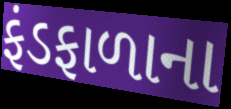
ફંડફાળાના